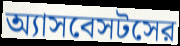
অ্যাসবেসটসের